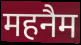
महनैम